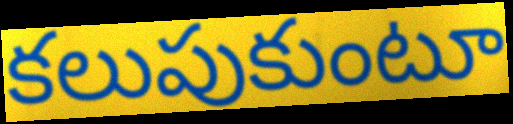
కలుపుకుంటూ